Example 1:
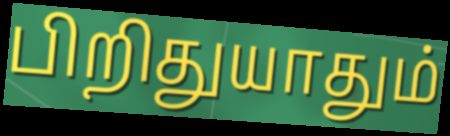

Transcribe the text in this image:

பிறிதுயாதும்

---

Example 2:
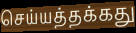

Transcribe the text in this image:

செய்யத்தக்கது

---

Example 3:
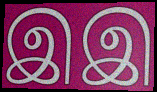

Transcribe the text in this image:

இஇ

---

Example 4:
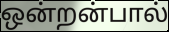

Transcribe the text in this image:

ஒன்றன்பால்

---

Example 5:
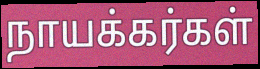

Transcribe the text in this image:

நாயக்கர்கள்